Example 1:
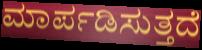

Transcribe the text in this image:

ಮಾರ್ಪಡಿಸುತ್ತದೆ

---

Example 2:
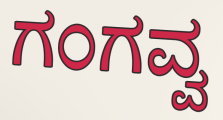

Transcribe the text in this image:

ಗಂಗವ್ವ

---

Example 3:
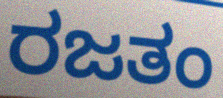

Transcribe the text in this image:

ರಜತಂ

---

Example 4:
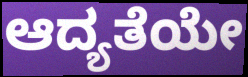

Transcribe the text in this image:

ಆದ್ಯತೆಯೇ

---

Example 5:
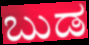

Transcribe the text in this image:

ಬುಡ